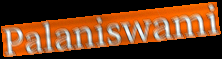
Palaniswami